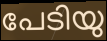
പേടിയു